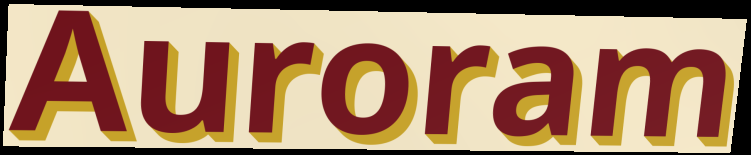
Auroram